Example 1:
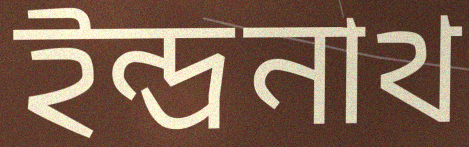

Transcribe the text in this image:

ইন্দ্ৰনাথ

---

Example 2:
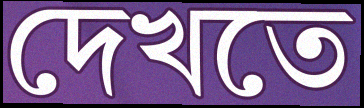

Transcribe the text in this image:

দেখতে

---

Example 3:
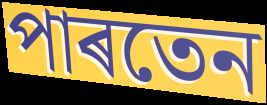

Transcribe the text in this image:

পাৰতেন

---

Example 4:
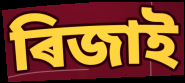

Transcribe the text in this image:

ৰিজাই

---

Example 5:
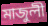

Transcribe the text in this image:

মাজুলী